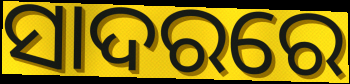
ସାଦରରେ